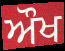
ਔਖ